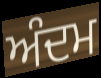
ਅੰਦਮ